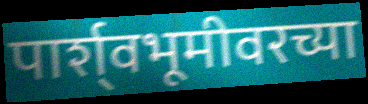
पार्श्वभूमीवरच्या